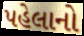
પહેલાનો